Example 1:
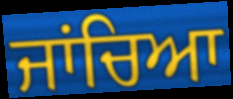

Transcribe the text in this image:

ਜਾਂਚਿਆ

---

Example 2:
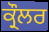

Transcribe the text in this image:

ਕ੍ਰੌਲਰ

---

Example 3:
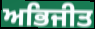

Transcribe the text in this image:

ਅਭਿਜੀਤ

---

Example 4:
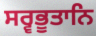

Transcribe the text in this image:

ਸਰ੍ਵਭੂਤਾਨਿ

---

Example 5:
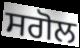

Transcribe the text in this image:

ਸਗੋਲ